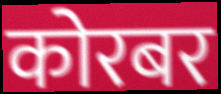
कोरबर